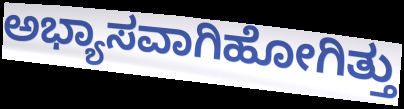
ಅಭ್ಯಾಸವಾಗಿಹೋಗಿತ್ತು